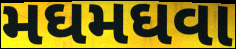
મઘમઘવા